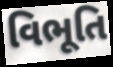
વિભૂતિ